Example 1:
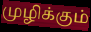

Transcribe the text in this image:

முழிக்கும்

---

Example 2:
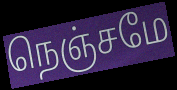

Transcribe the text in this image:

நெஞ்சமே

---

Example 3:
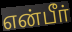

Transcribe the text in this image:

என்பீர்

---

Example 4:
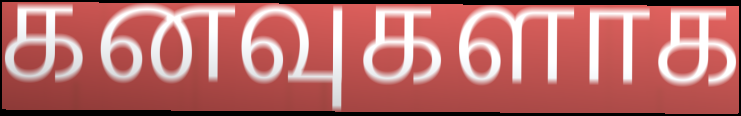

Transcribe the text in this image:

கனவுகளாக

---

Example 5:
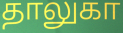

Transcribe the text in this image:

தாலுகா